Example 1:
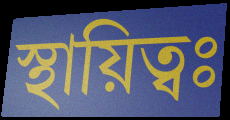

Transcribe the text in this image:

স্থায়িত্বঃ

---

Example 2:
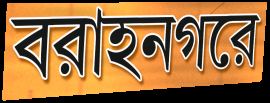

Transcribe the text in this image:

বরাহনগরে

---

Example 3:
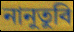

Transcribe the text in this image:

নানুতুবি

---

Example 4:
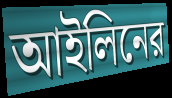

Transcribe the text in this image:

আইলিনের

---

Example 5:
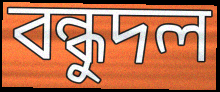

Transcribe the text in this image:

বন্ধুদল